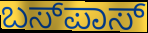
ಬಸ್‍ಪಾಸ್